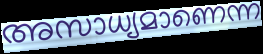
അസാധ്യമാണെന്ന